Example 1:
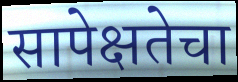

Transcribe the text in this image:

सापेक्षतेचा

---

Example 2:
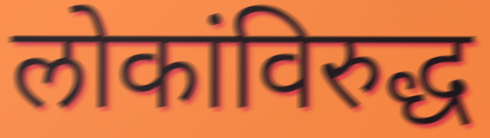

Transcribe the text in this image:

लोकांविरुद्ध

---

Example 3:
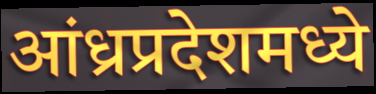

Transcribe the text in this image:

आंध्रप्रदेशमध्ये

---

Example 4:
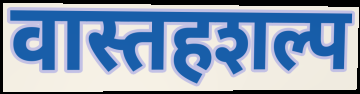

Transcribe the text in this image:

वास्तहशल्प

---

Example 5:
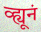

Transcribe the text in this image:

व्ह्यूनं